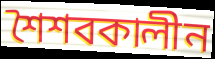
শৈশবকালীন